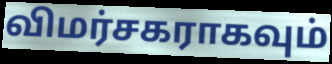
விமர்சகராகவும்